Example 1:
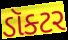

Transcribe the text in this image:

ડૉક્ટર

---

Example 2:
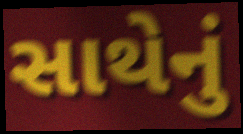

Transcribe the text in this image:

સાથેનું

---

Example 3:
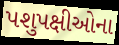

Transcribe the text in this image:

પશુપક્ષીઓના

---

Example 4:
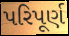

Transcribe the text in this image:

પરિપૂર્ણ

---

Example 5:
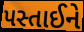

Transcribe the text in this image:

પસ્તાઈને